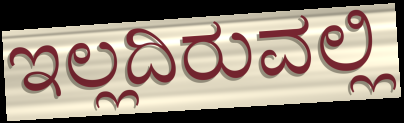
ಇಲ್ಲದಿರುವಲ್ಲಿ